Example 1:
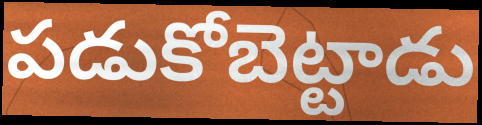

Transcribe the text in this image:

పడుకోబెట్టాడు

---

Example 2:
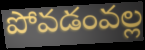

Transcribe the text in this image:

పోవడంవల్ల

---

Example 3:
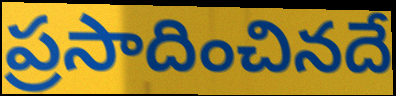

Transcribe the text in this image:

ప్రసాదించినదే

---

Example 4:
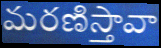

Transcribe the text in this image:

మరణిస్తావా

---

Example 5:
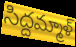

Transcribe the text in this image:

సిద్దమ్మాళ్